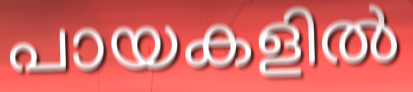
പായകളിൽ